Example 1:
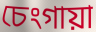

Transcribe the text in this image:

চেংগায়া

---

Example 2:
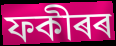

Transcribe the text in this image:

ফকীৰৰ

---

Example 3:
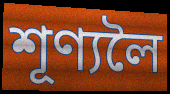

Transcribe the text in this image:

শূণ্যলৈ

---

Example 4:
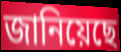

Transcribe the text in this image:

জানিয়েছে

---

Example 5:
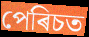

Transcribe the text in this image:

পেৰিচত